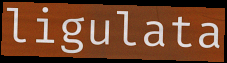
ligulata